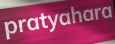
pratyahara